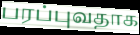
பரப்புவதாக